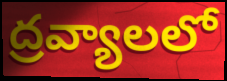
ద్రవ్యాలలో